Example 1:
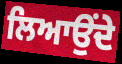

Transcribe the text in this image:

ਲਿਆਉਂਦੇ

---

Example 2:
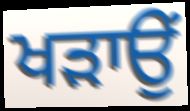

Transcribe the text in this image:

ਖੜਾਉਂ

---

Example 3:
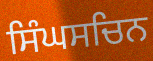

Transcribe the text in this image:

ਸਿੰਘਸਚਿਨ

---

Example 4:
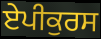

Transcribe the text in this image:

ਏਪੀਕੁਰਸ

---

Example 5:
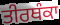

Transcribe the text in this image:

ਤੀਰਥੰਕਾ